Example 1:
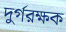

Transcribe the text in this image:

দুর্গরক্ষক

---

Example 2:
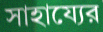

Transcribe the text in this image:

সাহায্যের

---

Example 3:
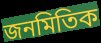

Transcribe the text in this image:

জনমিতিক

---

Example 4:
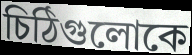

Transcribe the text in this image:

চিঠিগুলোকে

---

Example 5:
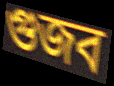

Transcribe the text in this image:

গুজব